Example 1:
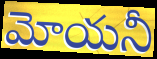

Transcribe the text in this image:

మోయనీ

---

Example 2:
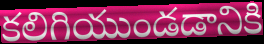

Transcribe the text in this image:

కలిగియుండడానికి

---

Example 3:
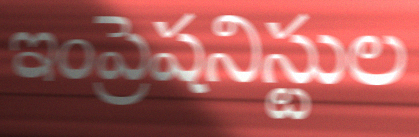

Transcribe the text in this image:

ఇంప్రెషనిస్టుల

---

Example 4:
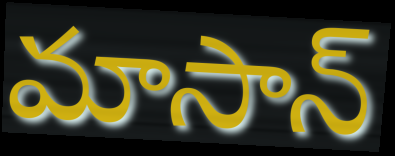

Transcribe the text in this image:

మాసాన్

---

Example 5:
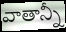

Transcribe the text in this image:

వాతాన్నీ